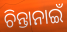
ଚିନ୍ତାନାଇଁ